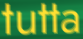
tutta